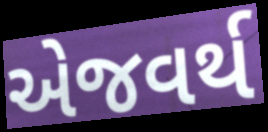
એજવર્થ